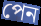
পেন